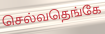
செல்வதெங்கே